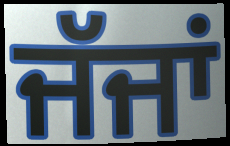
ਜੱਜਾਂ